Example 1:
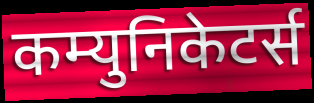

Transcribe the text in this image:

कम्युनिकेटर्स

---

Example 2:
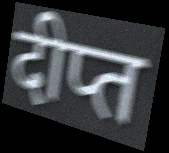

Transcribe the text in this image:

दीप्त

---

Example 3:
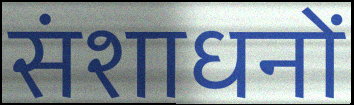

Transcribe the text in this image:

संशाधनों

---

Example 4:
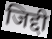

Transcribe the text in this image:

जिद्दी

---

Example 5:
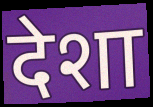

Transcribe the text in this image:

देशा